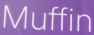
Muffin